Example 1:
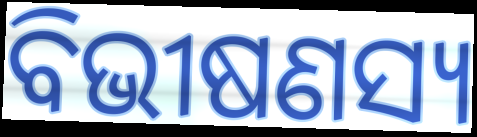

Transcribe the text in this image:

ବିଭୀଷଣସ୍ୟ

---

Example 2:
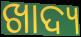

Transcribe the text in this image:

ଖାଦ୍ୟ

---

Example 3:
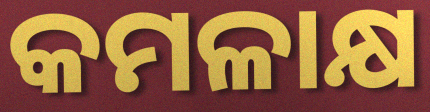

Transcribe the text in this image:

କମଳାକ୍ଷ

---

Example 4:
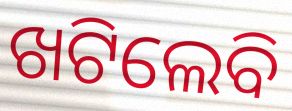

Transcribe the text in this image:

ଖଟିଲେବି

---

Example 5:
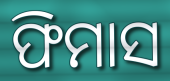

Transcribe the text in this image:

ଫିମାସ